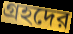
গ্রহদের